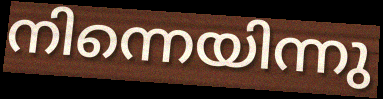
നിന്നെയിന്നു